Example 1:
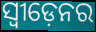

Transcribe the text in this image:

ସ୍ଵୀଡ଼େନର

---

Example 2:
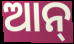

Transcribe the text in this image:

ଆନ୍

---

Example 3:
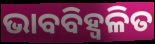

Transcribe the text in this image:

ଭାବବିହ୍ବଳିତ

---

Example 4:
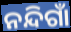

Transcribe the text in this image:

ନନ୍ଦିଗାଁ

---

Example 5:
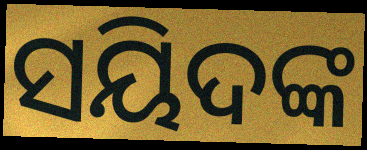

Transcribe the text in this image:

ସୟିଦଙ୍କ